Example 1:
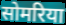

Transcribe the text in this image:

सोमरिया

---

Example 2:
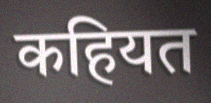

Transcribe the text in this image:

कहियत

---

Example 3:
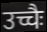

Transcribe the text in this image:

उच्चैः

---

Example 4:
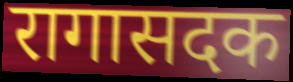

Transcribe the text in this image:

रागासदक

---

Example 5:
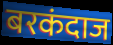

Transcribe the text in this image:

बरकंदाज